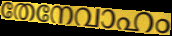
തേനേവാഹം